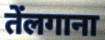
तेंलगाना